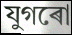
যুগৰো